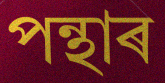
পন্থাৰ